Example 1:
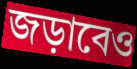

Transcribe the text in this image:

জড়াবেও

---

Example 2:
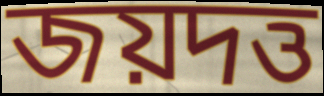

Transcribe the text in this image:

জয়দত্ত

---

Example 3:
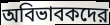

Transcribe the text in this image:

অবিভাবকদের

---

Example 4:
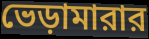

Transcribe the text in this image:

ভেড়ামারার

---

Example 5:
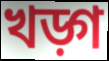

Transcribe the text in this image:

খড়্গ